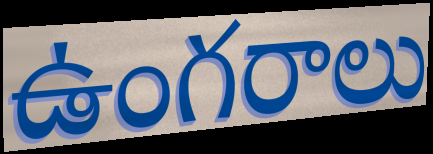
ఉంగరాలు